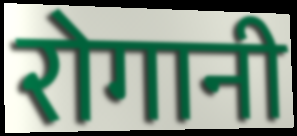
रोगानी